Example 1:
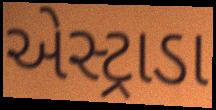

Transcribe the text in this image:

એસ્ટ્રાડા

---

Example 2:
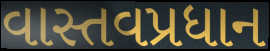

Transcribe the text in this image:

વાસ્તવપ્રધાન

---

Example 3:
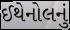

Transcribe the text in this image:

ઈથેનોલનું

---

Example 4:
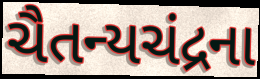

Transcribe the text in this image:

ચૈતન્યચંદ્રના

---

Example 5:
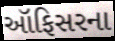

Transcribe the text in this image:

ઑફિસરના